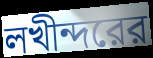
লখীন্দরের